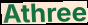
Athree